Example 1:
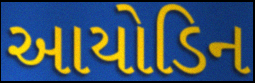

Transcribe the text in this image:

આયોડિન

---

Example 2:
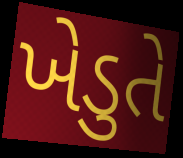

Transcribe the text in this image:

ખેડુતે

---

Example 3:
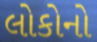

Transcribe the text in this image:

લોકોનો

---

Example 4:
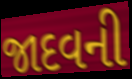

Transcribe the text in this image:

જાદવની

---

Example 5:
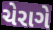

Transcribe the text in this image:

ચેરાગે